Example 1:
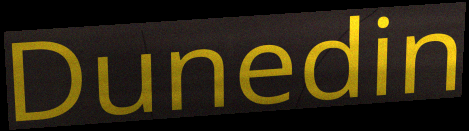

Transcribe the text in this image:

Dunedin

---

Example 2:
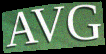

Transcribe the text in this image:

AVG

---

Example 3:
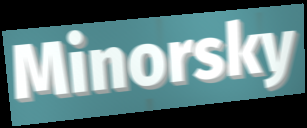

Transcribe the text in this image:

Minorsky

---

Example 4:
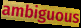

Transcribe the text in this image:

ambiguous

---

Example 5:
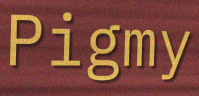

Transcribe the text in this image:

Pigmy